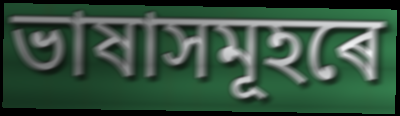
ভাষাসমূহৰে